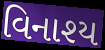
વિનાશ્ય